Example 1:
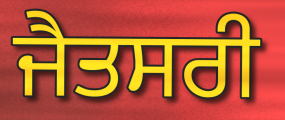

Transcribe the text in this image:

ਜੈਤਸਰੀ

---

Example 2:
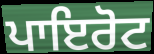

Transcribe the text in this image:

ਪਾਇਰੋਟ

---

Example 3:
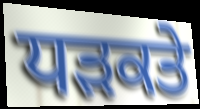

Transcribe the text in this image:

ਧੜਕਤੇ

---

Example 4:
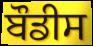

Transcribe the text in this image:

ਬੌਡੀਸ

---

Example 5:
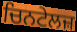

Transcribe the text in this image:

ਚਿਨਟੇਲਜ਼